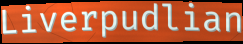
Liverpudlian